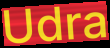
Udra